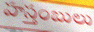
హస్తంబులు